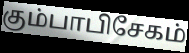
கும்பாபிசேகம்